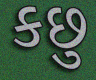
કછુ